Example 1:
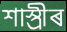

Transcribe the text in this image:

শাস্ত্ৰীৰ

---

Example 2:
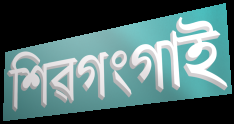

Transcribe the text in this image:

শিৱগংগাই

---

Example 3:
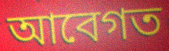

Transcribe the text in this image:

আবেগত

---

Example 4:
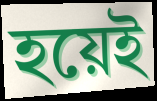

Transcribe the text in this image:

হয়েই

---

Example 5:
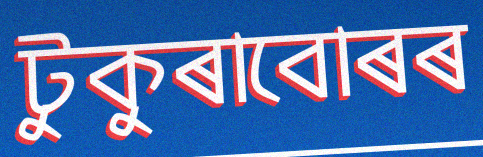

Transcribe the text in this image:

টুকুৰাবোৰৰ